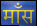
माँस